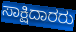
ಸಾಕ್ಷಿದಾರರು